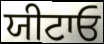
ਯੀਟਾਓ